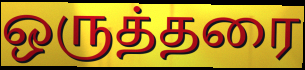
ஒருத்தரை